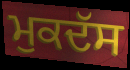
ਮੁਕਦੱਸ